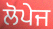
ਲੋਪੇਜ